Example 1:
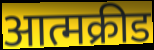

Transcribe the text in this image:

आत्मक्रीड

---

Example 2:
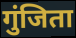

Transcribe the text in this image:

गुंजिता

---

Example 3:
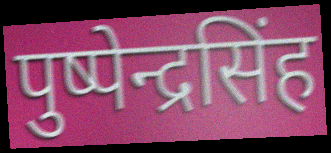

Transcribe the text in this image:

पुष्पेन्द्रसिंह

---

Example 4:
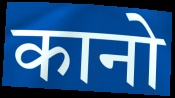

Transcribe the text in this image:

कानो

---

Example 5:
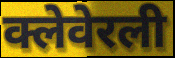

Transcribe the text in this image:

क्लेवेरली